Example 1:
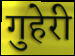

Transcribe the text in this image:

गुहेरी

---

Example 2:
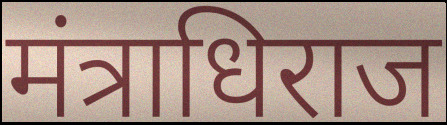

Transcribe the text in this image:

मंत्राधिराज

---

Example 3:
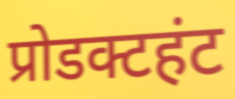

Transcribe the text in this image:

प्रोडक्टहंट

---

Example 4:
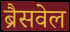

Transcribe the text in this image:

ब्रैसवेल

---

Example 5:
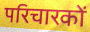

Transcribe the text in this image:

परिचारकों